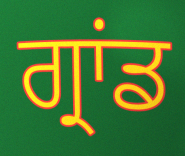
ਗ੍ਰਾਂਡ